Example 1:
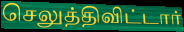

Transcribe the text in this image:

செலுத்திவிட்டார்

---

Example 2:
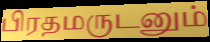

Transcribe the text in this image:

பிரதமருடனும்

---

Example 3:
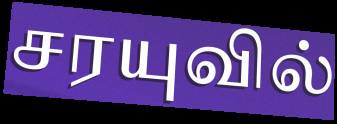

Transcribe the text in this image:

சரயுவில்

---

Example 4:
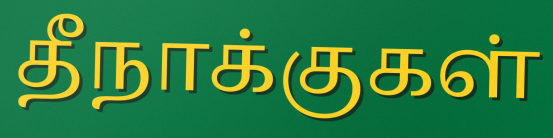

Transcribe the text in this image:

தீநாக்குகள்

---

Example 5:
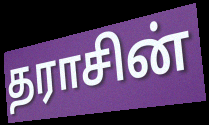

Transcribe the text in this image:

தராசின்